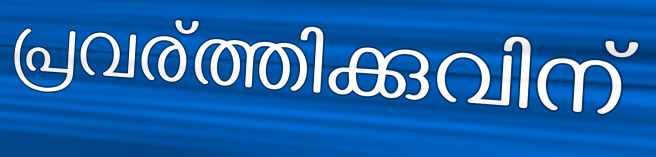
പ്രവര്ത്തിക്കുവിന്